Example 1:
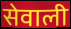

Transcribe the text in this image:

सेवाली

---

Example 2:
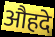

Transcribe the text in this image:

औहदे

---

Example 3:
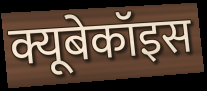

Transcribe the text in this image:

क्यूबेकॉइस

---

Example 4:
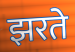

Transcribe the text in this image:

झरते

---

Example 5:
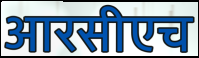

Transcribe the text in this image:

आरसीएच